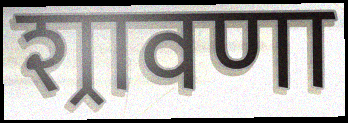
श्रावणा